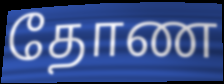
தோண